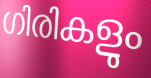
ഗിരികളും